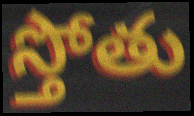
స్తోతు